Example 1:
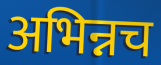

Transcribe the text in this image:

अभिन्नच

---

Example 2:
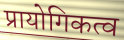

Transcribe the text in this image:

प्रायोगिकत्व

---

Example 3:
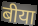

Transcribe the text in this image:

बीया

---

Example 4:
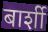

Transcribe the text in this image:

बार्शी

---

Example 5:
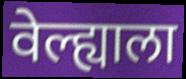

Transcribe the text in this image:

वेल्ह्याला